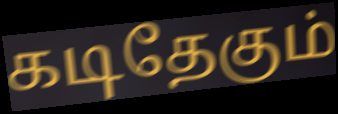
கடிதேகும்